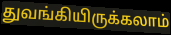
துவங்கியிருக்கலாம்